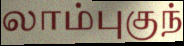
லாம்புகுந்